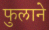
फुलाने